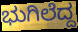
ಭುಗಿಲೆದ್ದ